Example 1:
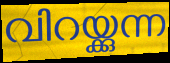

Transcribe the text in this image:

വിറയ്ക്കുന്ന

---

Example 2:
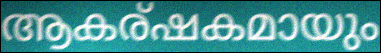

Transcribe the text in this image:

ആകര്ഷകമായും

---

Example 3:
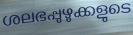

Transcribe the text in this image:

ശലഭപ്പുഴുക്കളുടെ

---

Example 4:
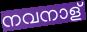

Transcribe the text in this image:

നവനാള്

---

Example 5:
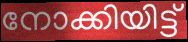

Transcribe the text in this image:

നോക്കിയിട്ട്